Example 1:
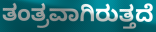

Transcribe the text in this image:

ತಂತ್ರವಾಗಿರುತ್ತದೆ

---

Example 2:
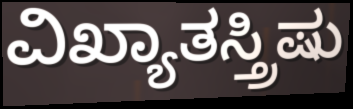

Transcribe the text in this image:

ವಿಖ್ಯಾತಸ್ತ್ರಿಷು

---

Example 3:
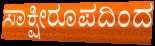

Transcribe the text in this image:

ಸಾಕ್ಷೀರೂಪದಿಂದ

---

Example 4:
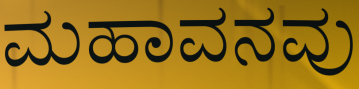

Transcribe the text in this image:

ಮಹಾವನವು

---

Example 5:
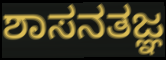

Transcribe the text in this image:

ಶಾಸನತಜ್ಞ